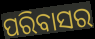
ପରିବାସର